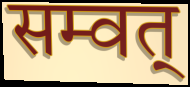
सम्वत्